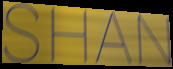
SHAN